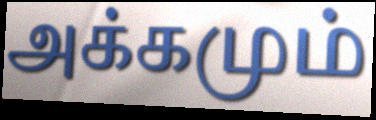
அக்கமும்